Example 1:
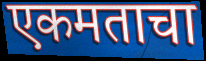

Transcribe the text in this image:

एकमताचा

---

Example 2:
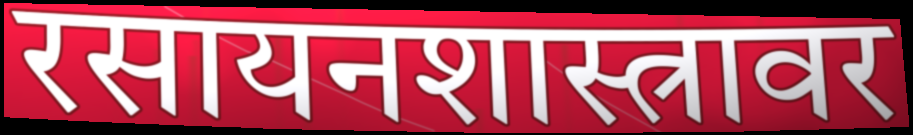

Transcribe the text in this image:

रसायनशास्त्रावर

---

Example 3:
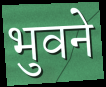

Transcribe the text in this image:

भुवने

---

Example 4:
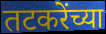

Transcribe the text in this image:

तटकरेंच्या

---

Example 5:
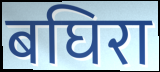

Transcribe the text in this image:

बघिरा